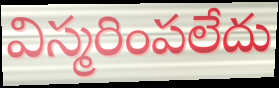
విస్మరింపలేదు